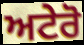
ਅਟੇਰੋ